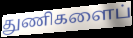
துணிகளைப்